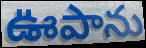
ఊపాను